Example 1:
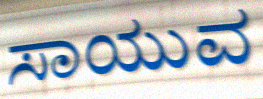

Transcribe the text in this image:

ಸಾಯುವ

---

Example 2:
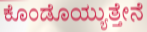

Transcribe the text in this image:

ಕೊಂಡೊಯ್ಯುತ್ತೇನೆ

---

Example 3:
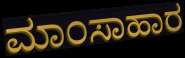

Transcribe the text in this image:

ಮಾಂಸಾಹಾರ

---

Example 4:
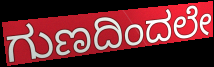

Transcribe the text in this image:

ಗುಣದಿಂದಲೇ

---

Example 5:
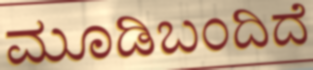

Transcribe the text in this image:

ಮೂಡಿಬಂದಿದೆ